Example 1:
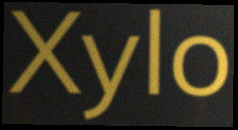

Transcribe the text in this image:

Xylo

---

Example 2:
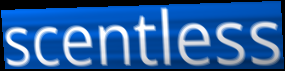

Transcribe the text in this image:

scentless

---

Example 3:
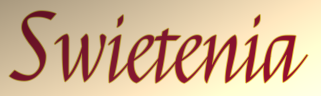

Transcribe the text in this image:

Swietenia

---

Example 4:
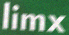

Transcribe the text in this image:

limx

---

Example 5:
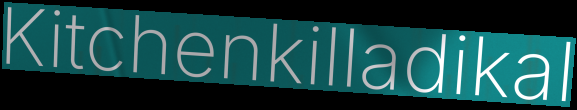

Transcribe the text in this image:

Kitchenkilladikal